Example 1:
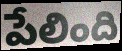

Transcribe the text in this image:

పేలింది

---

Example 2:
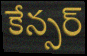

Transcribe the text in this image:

కేన్సర్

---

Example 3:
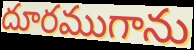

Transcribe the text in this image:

దూరముగాను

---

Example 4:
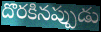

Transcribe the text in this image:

దొరకినప్పుడు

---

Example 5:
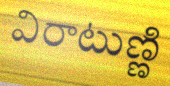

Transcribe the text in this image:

విరాటుణ్ణి